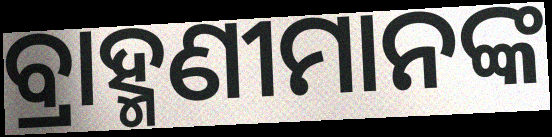
ବ୍ରାହ୍ମଣୀମାନଙ୍କ